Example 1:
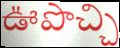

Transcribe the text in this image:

ఊపొచ్చి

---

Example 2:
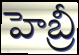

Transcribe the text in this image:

హెబ్రీ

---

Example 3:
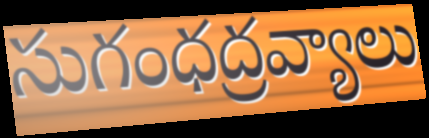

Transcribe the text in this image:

సుగంధద్రవ్యాలు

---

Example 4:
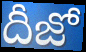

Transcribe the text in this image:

దీజో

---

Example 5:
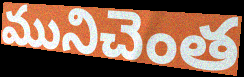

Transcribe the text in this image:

మునిచెంత